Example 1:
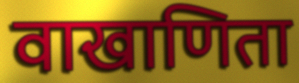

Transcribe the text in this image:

वाखाणिता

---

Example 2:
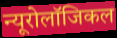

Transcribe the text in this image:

न्यूरोलॉजिकल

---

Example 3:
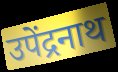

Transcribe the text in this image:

उपेंद्रनाथ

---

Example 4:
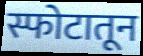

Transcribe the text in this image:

स्फोटातून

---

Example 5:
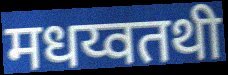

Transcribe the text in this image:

मधय्वतथी